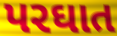
પરઘાત